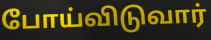
போய்விடுவார்